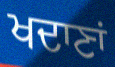
ਖਦਾਣਾਂ